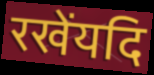
रखेंयदि